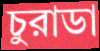
চুরাডা